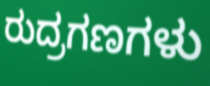
ರುದ್ರಗಣಗಳು